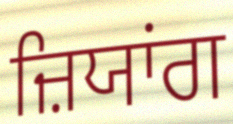
ਜ਼ਿਯਾਂਗ